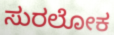
ಸುರಲೋಕ